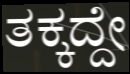
ತಕ್ಕದ್ದೇ